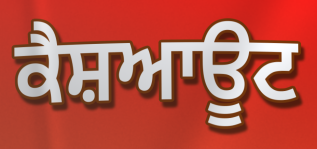
ਕੈਸ਼ਆਊਟ